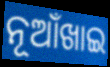
ନୂଆଁଖାଇ